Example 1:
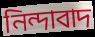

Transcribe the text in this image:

নিন্দাবাদ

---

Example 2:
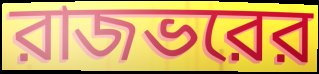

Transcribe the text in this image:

রাজভরের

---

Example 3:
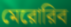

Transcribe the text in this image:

মেরোরিব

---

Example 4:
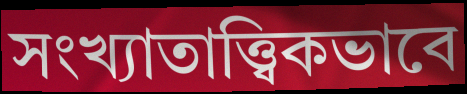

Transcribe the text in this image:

সংখ্যাতাত্ত্বিকভাবে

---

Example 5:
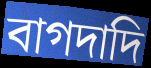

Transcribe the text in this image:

বাগদাদি